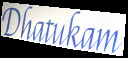
Dhatukam